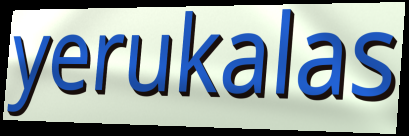
yerukalas